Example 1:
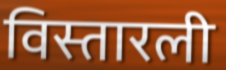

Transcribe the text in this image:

विस्तारली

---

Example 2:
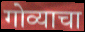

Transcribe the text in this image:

गोव्याचा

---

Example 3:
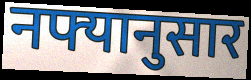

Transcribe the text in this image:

नफ्यानुसार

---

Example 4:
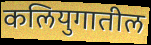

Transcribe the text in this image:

कलियुगातील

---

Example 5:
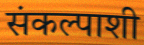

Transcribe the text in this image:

संकल्पाशी